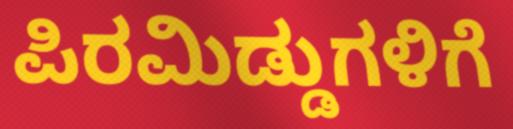
ಪಿರಮಿಡ್ಡುಗಳಿಗೆ